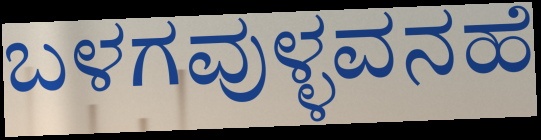
ಬಳಗವುಳ್ಳವನಹೆ